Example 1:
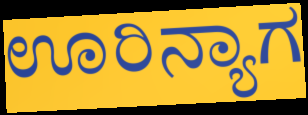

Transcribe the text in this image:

ಊರಿನ್ಯಾಗ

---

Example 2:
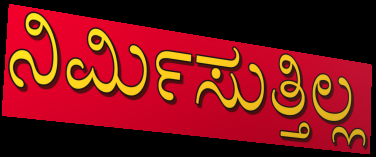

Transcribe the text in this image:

ನಿರ್ಮಿಸುತ್ತಿಲ್ಲ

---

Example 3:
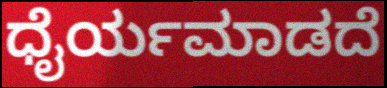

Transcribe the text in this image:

ಧೈರ್ಯಮಾಡದೆ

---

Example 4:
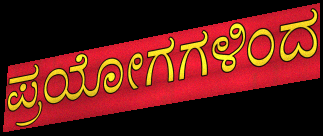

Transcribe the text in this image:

ಪ್ರಯೋಗಗಳಿಂದ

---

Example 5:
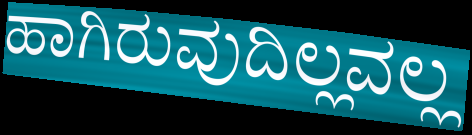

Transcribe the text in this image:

ಹಾಗಿರುವುದಿಲ್ಲವಲ್ಲ